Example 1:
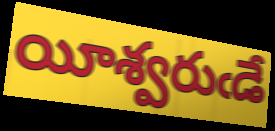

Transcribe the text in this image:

యీశ్వరుఁడే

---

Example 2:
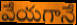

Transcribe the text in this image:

వేయగానే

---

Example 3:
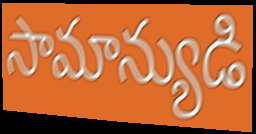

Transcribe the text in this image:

సామాన్యుడి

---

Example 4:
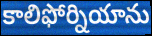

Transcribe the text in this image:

కాలిఫోర్నియాను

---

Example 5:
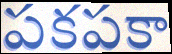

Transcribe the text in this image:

పకపకా